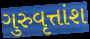
ગુરુવૃત્તાંશ